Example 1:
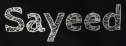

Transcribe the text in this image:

Sayeed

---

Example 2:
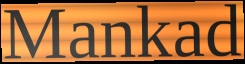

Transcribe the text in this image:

Mankad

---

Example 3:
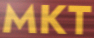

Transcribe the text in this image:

MKT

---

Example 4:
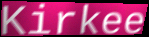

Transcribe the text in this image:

Kirkee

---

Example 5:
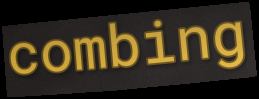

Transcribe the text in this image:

combing